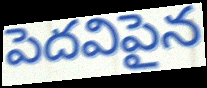
పెదవిపైన